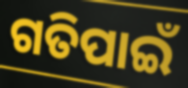
ଗତିପାଇଁ